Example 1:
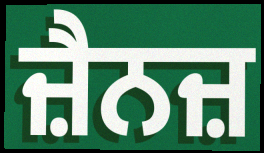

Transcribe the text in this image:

ਜ਼ੈਨਜ਼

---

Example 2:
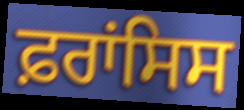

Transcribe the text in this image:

ਫ਼ਰਾਂਸਿਸ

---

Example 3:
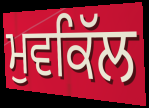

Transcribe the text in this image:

ਮੁਵਕਿੱਲ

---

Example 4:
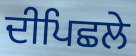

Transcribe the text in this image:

ਦੀਪਿਛਲੇ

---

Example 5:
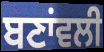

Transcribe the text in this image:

ਬਣਾਂਵਲੀ